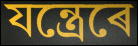
যন্ত্ৰেৰে